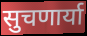
सुचणार्या